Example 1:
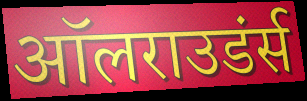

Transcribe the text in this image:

ऑलराउडंर्स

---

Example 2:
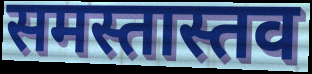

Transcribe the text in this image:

समस्तास्तव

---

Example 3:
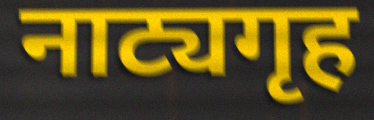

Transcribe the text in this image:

नाट्यगृह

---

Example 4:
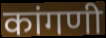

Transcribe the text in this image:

कांगणी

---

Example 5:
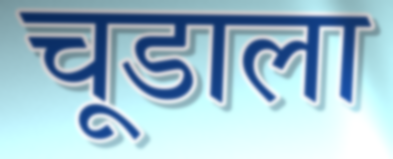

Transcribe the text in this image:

चूडाला